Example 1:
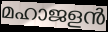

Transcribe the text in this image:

മഹാജളൻ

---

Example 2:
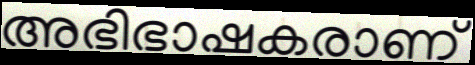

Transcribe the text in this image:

അഭിഭാഷകരാണ്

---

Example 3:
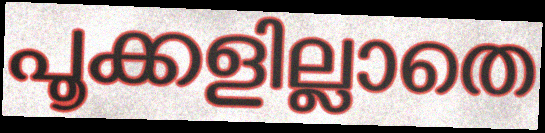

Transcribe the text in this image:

പൂക്കളില്ലാതെ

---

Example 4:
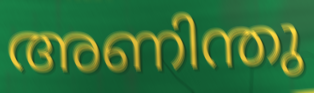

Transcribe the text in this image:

അണിന്തു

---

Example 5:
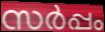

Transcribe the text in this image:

സർപ്പം